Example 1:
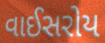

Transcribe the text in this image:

વાઈસરોય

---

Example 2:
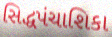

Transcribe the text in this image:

સિદ્ધપંચાશિકા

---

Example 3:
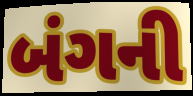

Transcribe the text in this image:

બંગની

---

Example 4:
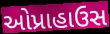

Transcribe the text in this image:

ઓપ્રાહાઉસ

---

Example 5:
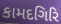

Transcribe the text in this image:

કામદગિરિ